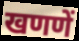
खणणें